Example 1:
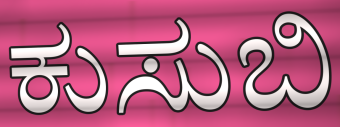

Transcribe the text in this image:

ಕುಸುಬಿ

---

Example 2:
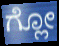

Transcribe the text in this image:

ಗ್ಲೋ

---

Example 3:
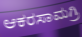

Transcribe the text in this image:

ಆಕರಸಾಮಗ್ರಿ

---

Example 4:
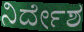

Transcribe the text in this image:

ನಿರ್ದೇಶ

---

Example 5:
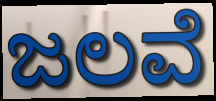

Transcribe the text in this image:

ಜಲವೆ